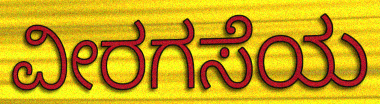
ವೀರಗಸೆಯ